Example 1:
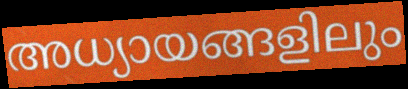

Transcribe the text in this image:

അധ്യായങ്ങളിലും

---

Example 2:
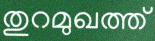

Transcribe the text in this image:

തുറമുഖത്ത്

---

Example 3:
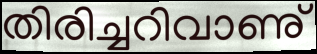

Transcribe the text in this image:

തിരിച്ചറിവാണു്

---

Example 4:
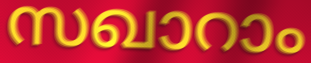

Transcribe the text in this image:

സഖാറാം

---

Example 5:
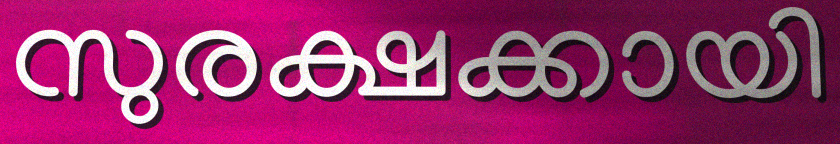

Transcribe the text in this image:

സുരക്ഷക്കായി